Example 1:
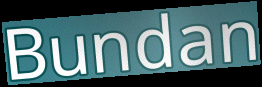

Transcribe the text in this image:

Bundan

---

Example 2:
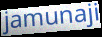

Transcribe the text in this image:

jamunaji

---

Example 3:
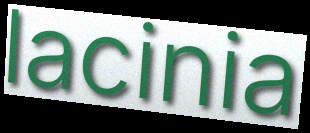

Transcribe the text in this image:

lacinia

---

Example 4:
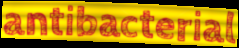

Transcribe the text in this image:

antibacterial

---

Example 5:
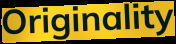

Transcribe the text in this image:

Originality